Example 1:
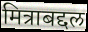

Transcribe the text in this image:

मित्राबद्दल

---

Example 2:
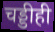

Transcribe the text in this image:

चड्डीही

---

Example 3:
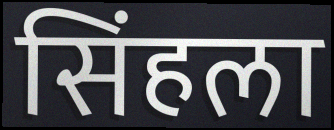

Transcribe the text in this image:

सिंहला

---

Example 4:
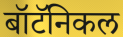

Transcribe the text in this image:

बॉटॅनिकल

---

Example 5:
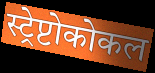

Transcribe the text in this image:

स्ट्रेप्टोकोकल